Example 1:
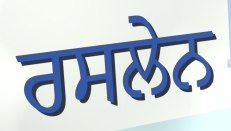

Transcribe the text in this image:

ਰਸਲੇਨ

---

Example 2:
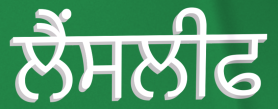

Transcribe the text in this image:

ਲੈਂਸਲੀਫ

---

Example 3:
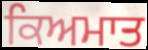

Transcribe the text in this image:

ਕਿਅਮਾਤ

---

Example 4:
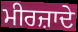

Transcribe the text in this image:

ਮੀਰਜ਼ਾਦੇ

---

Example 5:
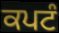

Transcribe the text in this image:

ਕਪਟੰ